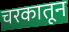
चरकातून